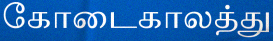
கோடைகாலத்து